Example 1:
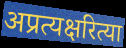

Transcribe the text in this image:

अप्रत्यक्षरित्या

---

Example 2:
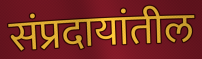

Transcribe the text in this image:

संप्रदायांतील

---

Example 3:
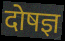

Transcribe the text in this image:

दोषज्ञ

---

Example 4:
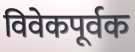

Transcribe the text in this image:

विवेकपूर्वक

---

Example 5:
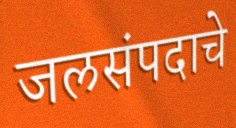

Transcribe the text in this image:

जलसंपदाचे